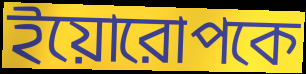
ইয়োরোপকে